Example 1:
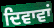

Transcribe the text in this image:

ਦਿਵਾਵਾਂ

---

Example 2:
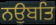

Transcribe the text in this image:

ਨਉਬਤਿ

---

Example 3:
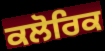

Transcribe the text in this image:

ਕਲੋਰਿਕ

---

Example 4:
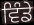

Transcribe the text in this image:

ਵਿੰਡੇ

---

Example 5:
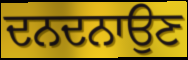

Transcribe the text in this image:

ਦਨਦਨਾਉਣ